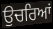
ਉਚਰਿਆਂ